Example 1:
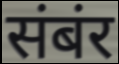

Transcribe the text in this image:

संबंर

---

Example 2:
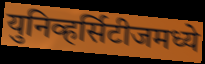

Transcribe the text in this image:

युनिव्हर्सिटीजमध्ये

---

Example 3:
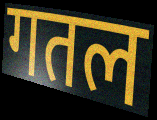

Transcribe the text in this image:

गतल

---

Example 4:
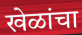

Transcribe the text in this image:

खेळांचा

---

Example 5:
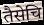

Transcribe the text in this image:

तैसेचि